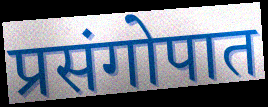
प्रसंगोपात